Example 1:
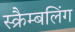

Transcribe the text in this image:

स्क्रैम्बलिंग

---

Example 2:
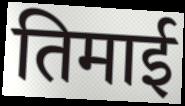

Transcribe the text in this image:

तिमाई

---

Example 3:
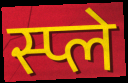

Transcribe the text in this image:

स्प्ले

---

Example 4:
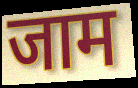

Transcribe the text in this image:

जाम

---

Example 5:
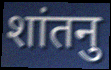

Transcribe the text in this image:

शांतनु